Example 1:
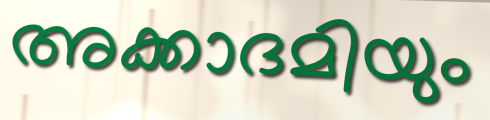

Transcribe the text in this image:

അക്കാദമിയും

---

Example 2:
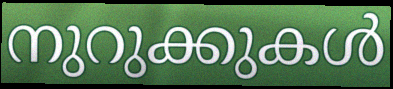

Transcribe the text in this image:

നുറുക്കുകൾ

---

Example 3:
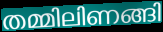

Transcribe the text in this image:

തമ്മിലിണങ്ങി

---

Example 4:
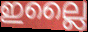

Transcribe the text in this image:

ഇല്ലൈ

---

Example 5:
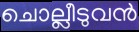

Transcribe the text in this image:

ചൊല്ലീടുവൻ